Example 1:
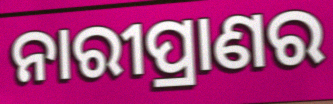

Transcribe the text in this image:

ନାରୀପ୍ରାଣର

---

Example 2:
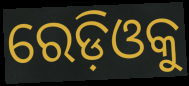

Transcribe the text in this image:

ରେଡ଼ିଓକୁ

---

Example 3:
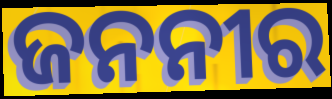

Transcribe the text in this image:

ଜନନୀର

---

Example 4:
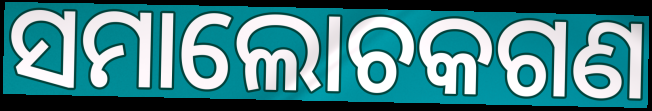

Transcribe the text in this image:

ସମାଲୋଚକଗଣ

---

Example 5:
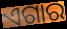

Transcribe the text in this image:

ଏଗାର